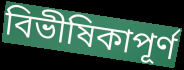
বিভীষিকাপূর্ণ